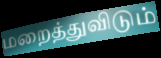
மறைத்துவிடும்